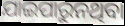
ଯାଇପାରୁନଥିବା